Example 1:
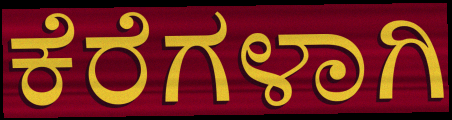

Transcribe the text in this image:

ಕೆರೆಗಳಾಗಿ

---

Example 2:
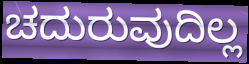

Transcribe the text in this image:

ಚದುರುವುದಿಲ್ಲ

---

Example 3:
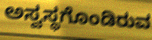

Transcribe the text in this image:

ಅಸ್ವಸ್ಥಗೊಂಡಿರುವ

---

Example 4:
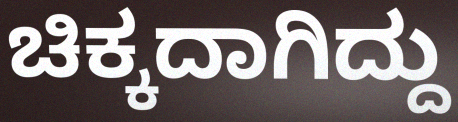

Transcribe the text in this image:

ಚಿಕ್ಕದಾಗಿದ್ದು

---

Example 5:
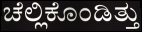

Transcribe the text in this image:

ಚೆಲ್ಲಿಕೊಂಡಿತ್ತು